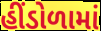
હીંડોળામાં